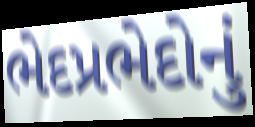
ભેદપ્રભેદોનું